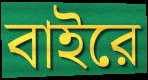
বাইরে